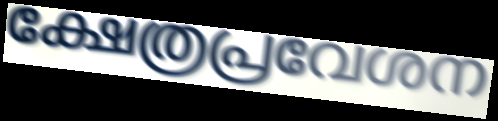
ക്ഷേത്രപ്രവേശന